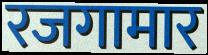
रजगामार